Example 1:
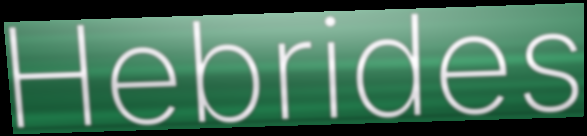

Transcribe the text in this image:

Hebrides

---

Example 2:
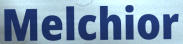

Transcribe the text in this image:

Melchior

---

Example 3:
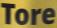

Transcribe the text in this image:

Tore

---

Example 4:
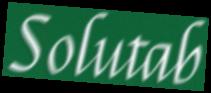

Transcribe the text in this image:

Solutab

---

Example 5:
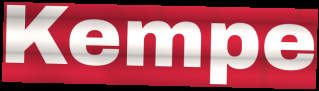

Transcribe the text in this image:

Kempe